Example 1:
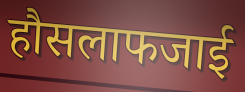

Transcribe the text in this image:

हौसलाफजाई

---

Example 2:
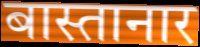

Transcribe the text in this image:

बास्तानार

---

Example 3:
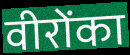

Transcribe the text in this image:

वीरोंका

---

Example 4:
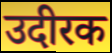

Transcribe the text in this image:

उदीरक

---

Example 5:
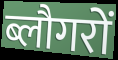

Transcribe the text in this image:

ब्लौगरों